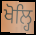
ਖੋਲ੍ਹਿ